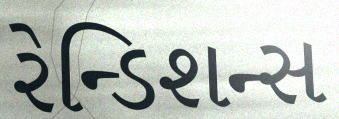
રેન્ડિશન્સ